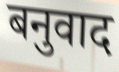
बनुवाद